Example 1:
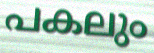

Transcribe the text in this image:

പകലും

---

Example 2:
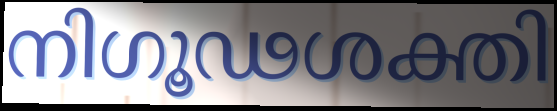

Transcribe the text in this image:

നിഗൂഢശക്തി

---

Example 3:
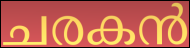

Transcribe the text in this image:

ചരകൻ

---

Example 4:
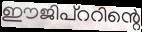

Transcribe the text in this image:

ഈജിപ്ററിന്റെ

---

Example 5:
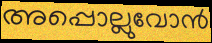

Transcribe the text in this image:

അപ്പൊല്ലുവോൻ